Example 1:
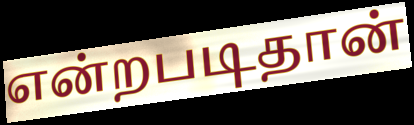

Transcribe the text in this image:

என்றபடிதான்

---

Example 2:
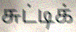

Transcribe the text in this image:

சுட்டிக்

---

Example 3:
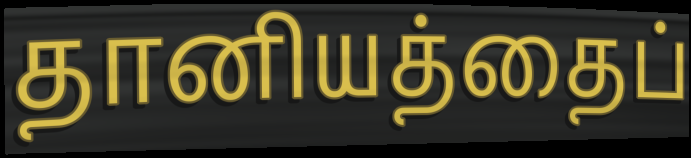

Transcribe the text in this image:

தானியத்தைப்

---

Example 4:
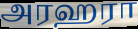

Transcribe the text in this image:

அரஹரா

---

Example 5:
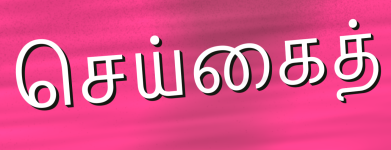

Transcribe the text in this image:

செய்கைத்